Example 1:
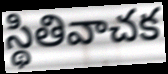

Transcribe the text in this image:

స్థితివాచక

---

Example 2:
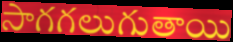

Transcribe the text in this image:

సాగగలుగుతాయి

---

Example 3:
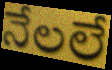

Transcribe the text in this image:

నేలలే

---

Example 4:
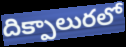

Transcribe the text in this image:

దిక్పాలురలో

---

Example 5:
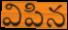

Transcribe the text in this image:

విపిన